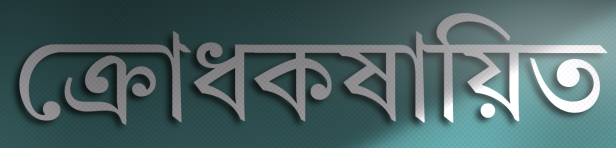
ক্রোধকষায়িত